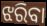
ଝରିବା